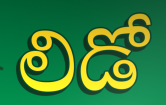
లిడో